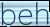
beh